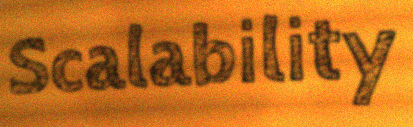
Scalability